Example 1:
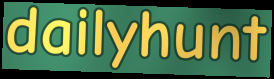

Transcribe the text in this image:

dailyhunt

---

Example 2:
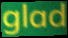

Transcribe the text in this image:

glad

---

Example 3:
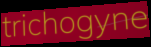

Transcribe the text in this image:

trichogyne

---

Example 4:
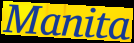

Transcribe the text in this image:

Manita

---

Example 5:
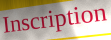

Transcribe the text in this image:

Inscription